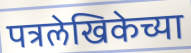
पत्रलेखिकेच्या